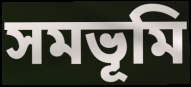
সমভূমি